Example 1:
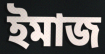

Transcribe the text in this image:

ইমাজ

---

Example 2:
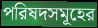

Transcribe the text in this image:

পরিষদসমূহের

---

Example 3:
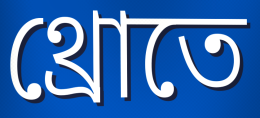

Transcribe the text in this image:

থ্রোতে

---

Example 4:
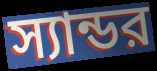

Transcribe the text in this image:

স্যান্ডর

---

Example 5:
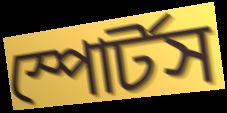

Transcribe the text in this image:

স্পোর্টস